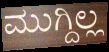
ಮುಗ್ದಿಲ್ಲ